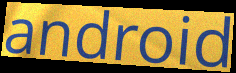
android